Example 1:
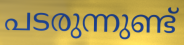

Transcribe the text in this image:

പടരുന്നുണ്ട്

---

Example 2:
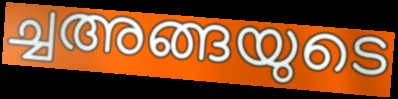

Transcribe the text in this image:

ച്ചഅങ്ങയുടെ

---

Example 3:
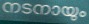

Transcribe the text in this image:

നടനായും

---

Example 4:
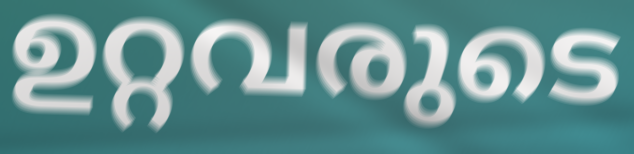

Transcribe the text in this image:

ഉറ്റവരുടെ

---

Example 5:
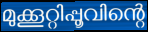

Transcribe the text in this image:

മുക്കൂറ്റിപ്പൂവിന്റെ